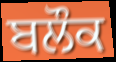
ਬਲੌਕ